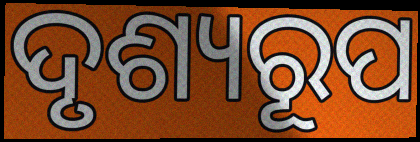
ଦୃଶ୍ୟରୂପ